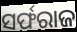
ସର୍ଫରାଜ